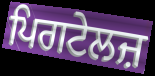
ਪਿਗਟੇਲਜ਼